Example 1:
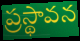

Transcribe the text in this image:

ప్రస్థావన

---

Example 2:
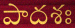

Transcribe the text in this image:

పాదశః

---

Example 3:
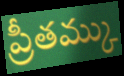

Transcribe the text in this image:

ప్రీతమ్కు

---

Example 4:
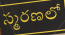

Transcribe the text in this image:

స్మరణలో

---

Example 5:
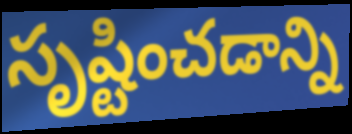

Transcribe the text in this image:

సృష్టించడాన్ని